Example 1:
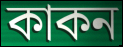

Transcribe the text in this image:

কাকন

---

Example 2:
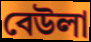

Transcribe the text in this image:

বেউলা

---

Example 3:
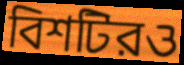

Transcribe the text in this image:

বিশটিরও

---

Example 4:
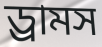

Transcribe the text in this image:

ড্রামস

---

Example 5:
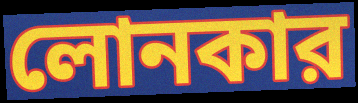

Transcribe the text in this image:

লোনকার